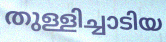
തുള്ളിച്ചാടിയ